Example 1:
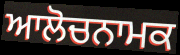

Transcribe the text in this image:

ਆਲੋਚਨਾਮਕ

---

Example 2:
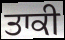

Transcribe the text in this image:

ਤਾਕੀ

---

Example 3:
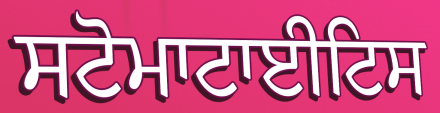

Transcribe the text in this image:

ਸਟੋਮਾਟਾਈਟਿਸ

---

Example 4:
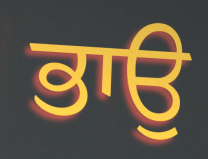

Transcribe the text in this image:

ਭਾਉ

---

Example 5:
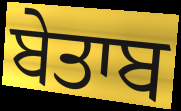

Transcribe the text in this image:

ਬੇਤਾਬ